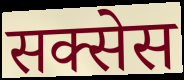
सक्सेस